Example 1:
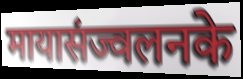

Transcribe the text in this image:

मायासंज्वलनके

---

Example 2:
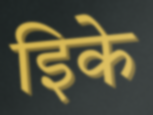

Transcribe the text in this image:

इिके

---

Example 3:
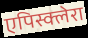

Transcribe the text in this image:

एपिस्क्लेरा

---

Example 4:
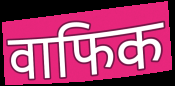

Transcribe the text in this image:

वाफिक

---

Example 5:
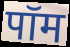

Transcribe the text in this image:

पॉम